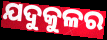
ଯଦୁକୁଳର